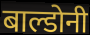
बाल्डोनी